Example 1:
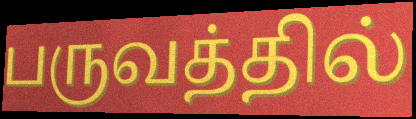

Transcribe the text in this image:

பருவத்தில்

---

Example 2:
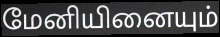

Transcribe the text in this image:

மேனியினையும்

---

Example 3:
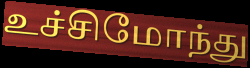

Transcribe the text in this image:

உச்சிமோந்து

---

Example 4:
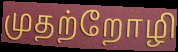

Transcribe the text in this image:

முதற்றோழி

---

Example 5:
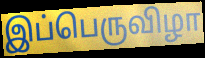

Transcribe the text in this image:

இப்பெருவிழா